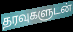
தரவுகளுடன்